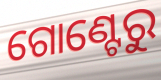
ଗୋଣ୍ଟେରୁ